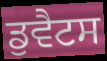
ਡੁਵੈਟਸ